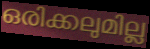
ഒരിക്കലുമില്ല